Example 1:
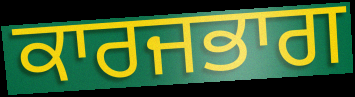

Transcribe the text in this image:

ਕਾਰਜਭਾਗ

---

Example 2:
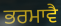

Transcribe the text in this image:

ਭਰਮਾਵੈ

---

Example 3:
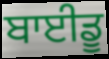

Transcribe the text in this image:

ਬਾਈਡੂ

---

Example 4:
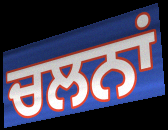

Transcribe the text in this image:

ਚਲਨਾਂ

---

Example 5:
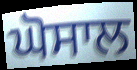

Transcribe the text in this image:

ਘੋਸਾਲ